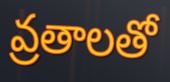
వ్రతాలతో